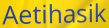
Aetihasik